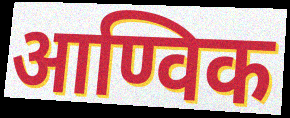
आण्विक